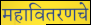
महावितरणचे